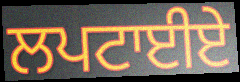
ਲਪਟਾਈਏ